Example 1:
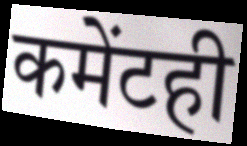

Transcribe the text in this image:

कमेंटही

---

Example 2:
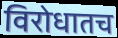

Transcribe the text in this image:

विरोधातच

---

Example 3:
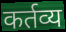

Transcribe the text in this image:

कर्तव्य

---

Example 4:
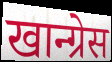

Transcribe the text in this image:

खान्ग्रेस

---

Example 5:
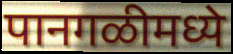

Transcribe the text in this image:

पानगळीमध्ये